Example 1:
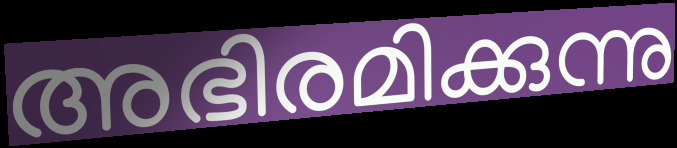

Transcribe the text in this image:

അഭിരമിക്കുന്നു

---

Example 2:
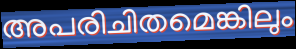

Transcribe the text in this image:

അപരിചിതമെങ്കിലും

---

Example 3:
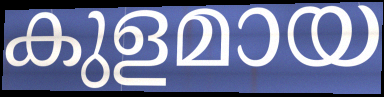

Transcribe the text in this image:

കുളമായ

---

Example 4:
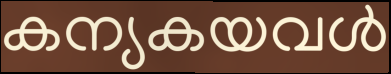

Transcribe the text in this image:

കന്യകയവൾ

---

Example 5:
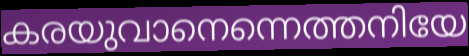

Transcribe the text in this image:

കരയുവാനെന്നെത്തനിയേ